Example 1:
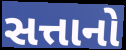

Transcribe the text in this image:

સત્તાનો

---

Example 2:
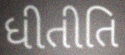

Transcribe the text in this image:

ધીતીતિ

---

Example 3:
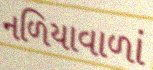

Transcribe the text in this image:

નળિયાવાળાં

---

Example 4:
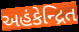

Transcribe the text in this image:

અહંકેન્દ્રિત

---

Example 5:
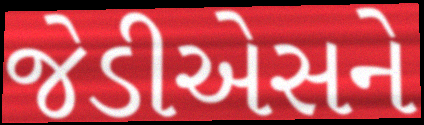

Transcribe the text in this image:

જેડીએસને